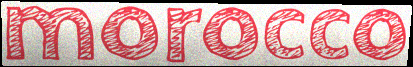
morocco